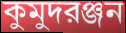
কুমুদরঞ্জন